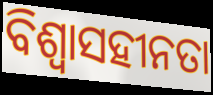
ବିଶ୍ୱାସହୀନତା